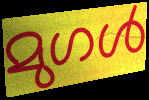
മുഗൾ